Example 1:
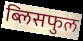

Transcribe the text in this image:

ब्लिसफुल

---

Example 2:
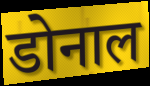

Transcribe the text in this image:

डोनाल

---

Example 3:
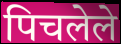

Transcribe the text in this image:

पिचलेले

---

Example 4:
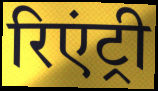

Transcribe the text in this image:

रिएंट्री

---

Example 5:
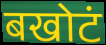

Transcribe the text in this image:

बखोटं